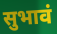
सुभावं